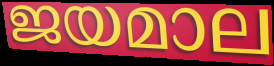
ജയമാല